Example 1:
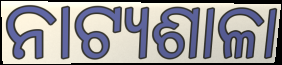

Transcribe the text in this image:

ନାଟ୍ୟଶାଳା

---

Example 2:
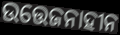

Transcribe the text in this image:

ଉତ୍ତେଜନାହୀନ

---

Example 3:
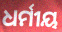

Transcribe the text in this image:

ଧର୍ମୀୟ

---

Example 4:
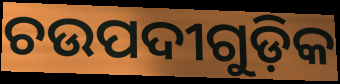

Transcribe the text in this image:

ଚଉପଦୀଗୁଡ଼ିକ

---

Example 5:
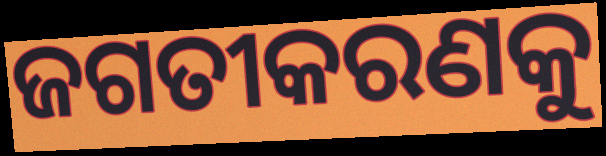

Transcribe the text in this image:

ଜଗତୀକରଣକୁ